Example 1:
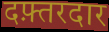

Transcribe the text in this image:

दफ़्तरदार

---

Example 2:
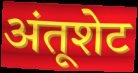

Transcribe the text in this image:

अंतूशेट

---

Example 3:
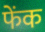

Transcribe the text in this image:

फेंक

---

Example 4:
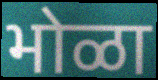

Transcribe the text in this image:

भोळा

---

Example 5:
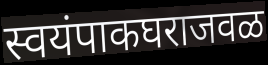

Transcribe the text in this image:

स्वयंपाकघराजवळ